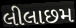
લીલાછમ